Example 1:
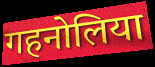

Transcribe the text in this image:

गहनोलिया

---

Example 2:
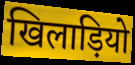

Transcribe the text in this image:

खिलाड़ियो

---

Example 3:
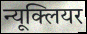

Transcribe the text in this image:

न्‍यूक्लियर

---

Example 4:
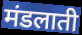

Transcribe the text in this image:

मंडलाती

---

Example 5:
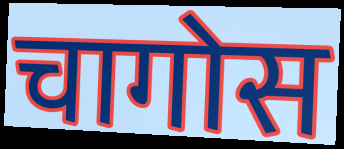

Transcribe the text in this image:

चागोस